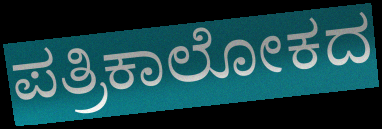
ಪತ್ರಿಕಾಲೋಕದ